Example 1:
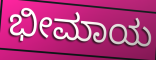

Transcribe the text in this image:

ಭೀಮಾಯ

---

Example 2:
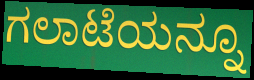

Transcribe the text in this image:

ಗಲಾಟೆಯನ್ನೂ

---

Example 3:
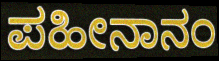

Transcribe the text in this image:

ಪಹೀನಾನಂ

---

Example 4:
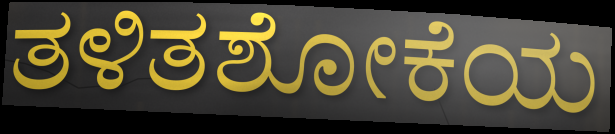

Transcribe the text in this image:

ತಳಿತಶೋಕೆಯ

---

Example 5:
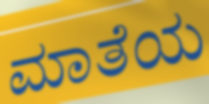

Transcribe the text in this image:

ಮಾತೆಯ